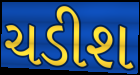
ચડીશ